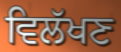
ਵਿਲੱਖਣ